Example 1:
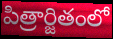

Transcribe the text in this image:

పిత్రార్జితంలో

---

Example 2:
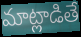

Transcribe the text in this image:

మాట్లాడితే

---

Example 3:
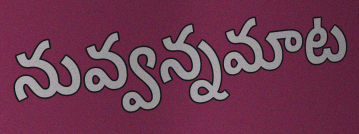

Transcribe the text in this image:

నువ్వన్నమాట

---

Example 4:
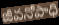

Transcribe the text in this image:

జీవనోపాధి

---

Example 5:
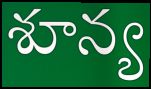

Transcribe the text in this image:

శూన్య